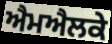
ਐਮਐਲਕੇ